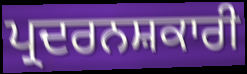
ਪ੍ਰਦਰਨਸ਼ਕਾਰੀ